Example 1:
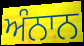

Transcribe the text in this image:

ਅੰਨਾਨ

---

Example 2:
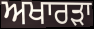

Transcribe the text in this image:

ਅਖਾਰੜਾ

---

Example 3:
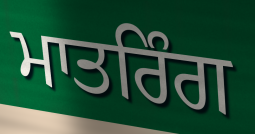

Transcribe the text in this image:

ਮਾਤਰਿੰਗ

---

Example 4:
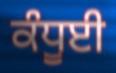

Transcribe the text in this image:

ਕੰਧੂਈ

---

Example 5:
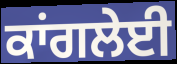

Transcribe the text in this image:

ਕਾਂਗਲੇਈ